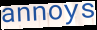
annoys